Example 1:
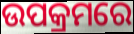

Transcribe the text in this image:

ଉପକ୍ରମରେ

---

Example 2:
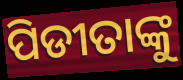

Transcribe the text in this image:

ପିଡୀତାଙ୍କୁ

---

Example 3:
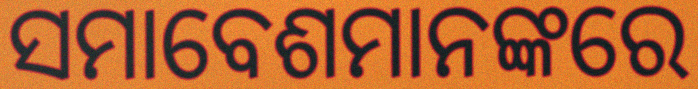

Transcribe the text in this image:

ସମାବେଶମାନଙ୍କରେ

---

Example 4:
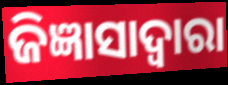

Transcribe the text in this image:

ଜିଜ୍ଞାସାଦ୍ୱାରା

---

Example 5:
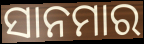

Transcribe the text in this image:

ସାନମାର